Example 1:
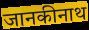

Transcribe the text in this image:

जानकीनाथ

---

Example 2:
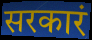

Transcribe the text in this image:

सरकारं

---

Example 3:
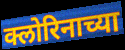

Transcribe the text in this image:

क्लोरिनाच्या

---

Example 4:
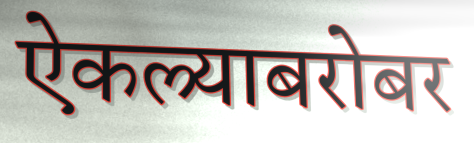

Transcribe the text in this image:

ऐकल्याबरोबर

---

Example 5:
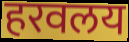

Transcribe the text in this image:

हरवलय